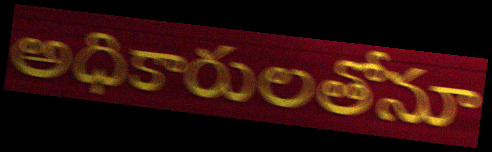
అధికారులతోనూ